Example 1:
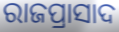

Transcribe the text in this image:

ରାଜପ୍ରାସାଦ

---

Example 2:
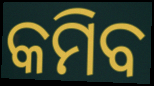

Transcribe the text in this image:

କମିବ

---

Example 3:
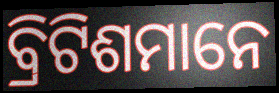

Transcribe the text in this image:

ବ୍ରିଟିଶମାନେ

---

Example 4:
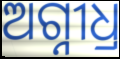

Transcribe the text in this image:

ଅଗ୍ନୀଧ୍ର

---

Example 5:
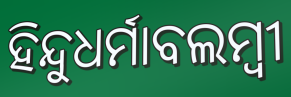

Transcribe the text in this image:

ହିନ୍ଦୁଧର୍ମାବଲମ୍ବୀ